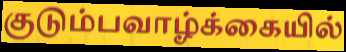
குடும்பவாழ்க்கையில்